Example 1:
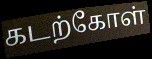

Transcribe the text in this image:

கடற்கோள்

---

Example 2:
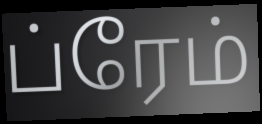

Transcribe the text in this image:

ப்ரேம்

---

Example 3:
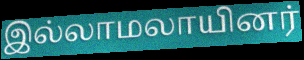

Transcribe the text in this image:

இல்லாமலாயினர்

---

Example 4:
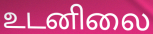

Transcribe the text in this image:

உடனிலை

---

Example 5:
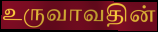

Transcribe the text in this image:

உருவாவதின்